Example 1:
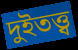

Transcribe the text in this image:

দুইতত্ত্ব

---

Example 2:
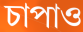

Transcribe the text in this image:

চাপাও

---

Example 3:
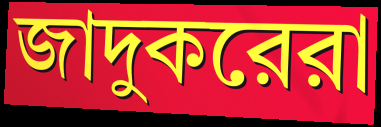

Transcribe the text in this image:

জাদুকরেরা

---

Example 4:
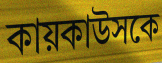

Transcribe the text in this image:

কায়কাউসকে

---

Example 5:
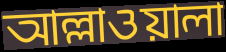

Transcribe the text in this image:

আল্লাওয়ালা